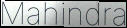
Mahindra